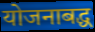
योजनाबद्ध